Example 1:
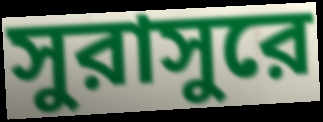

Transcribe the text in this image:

সুরাসুরে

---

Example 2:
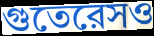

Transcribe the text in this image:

গুতেরেসও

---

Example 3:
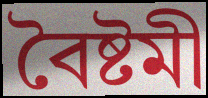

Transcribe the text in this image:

বৈষ্টমী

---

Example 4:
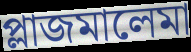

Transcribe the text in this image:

প্লাজমালেমা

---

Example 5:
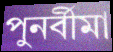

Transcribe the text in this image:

পুনর্বীমা